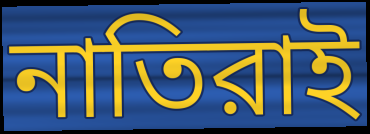
নাতিরাই